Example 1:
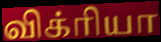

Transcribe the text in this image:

விக்ரியா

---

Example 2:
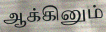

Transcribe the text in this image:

ஆக்கினும்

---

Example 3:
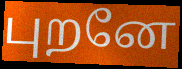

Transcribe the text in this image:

புறனே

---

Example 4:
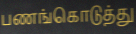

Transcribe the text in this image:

பணங்கொடுத்து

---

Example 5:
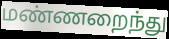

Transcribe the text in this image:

மண்ணறைந்து